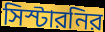
সিস্টারনির